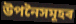
উপনৈসমূহৰ